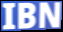
IBN